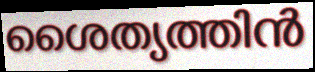
ശൈത്യത്തിൻ